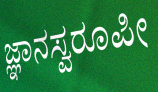
ಜ್ಞಾನಸ್ವರೂಪೀ